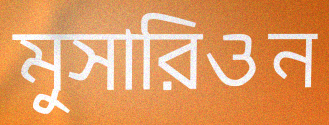
মুসারিওন